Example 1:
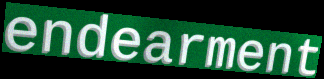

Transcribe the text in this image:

endearment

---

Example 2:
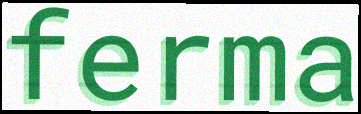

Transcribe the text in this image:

ferma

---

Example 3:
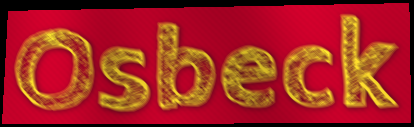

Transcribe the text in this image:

Osbeck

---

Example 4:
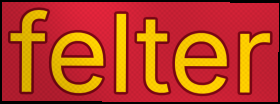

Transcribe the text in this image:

felter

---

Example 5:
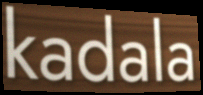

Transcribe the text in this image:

kadala